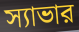
স্যাভার